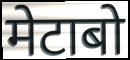
मेटाबो